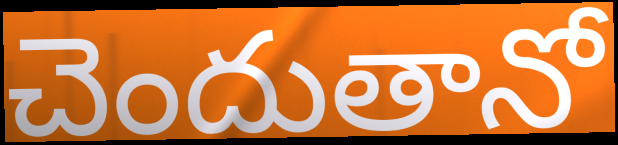
చెందుతానో